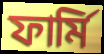
ফার্মি